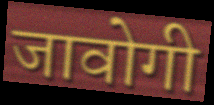
जावोगी